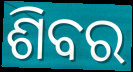
ଶିବର